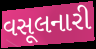
વસૂલનારી